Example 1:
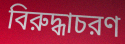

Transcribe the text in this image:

বিরুদ্ধাচরণ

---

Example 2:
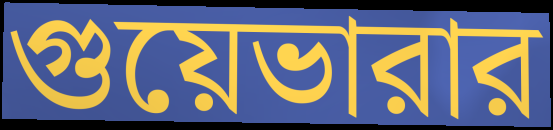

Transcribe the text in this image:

গুয়েভারার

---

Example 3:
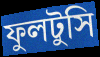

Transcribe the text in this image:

ফুলটুসি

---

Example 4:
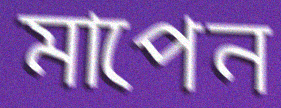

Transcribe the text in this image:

মাপেন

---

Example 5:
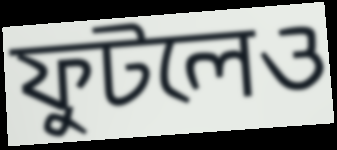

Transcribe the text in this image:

ফুটলেও